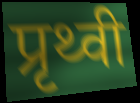
प्रृथ्वी